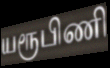
யரூபிணி